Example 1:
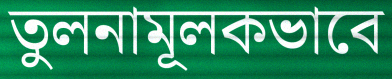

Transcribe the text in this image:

তুলনামূলকভাবে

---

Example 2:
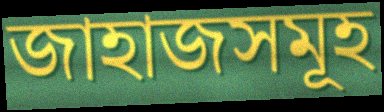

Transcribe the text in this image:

জাহাজসমূহ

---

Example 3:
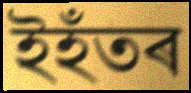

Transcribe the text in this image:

ইহঁতৰ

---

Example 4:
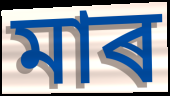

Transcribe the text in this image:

মাৰ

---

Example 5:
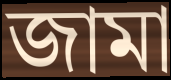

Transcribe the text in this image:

জামা